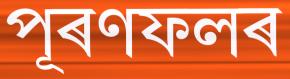
পূৰণফলৰ